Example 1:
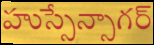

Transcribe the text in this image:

హుస్సేన్సాగర్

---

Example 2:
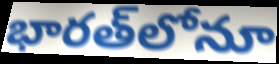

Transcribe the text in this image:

భారత్‌లోనూ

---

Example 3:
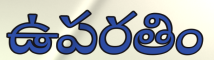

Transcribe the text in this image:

ఉపరతిం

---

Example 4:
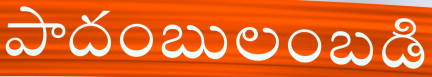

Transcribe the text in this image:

పాదంబులంబడి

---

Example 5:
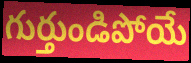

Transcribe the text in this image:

గుర్తుండిపోయే